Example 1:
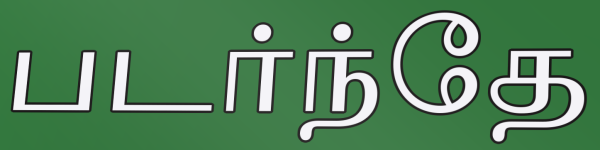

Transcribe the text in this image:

படர்ந்தே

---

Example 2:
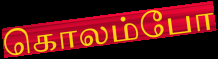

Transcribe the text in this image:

கொலம்போ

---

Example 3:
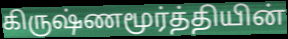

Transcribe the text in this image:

கிருஷ்ணமூர்த்தியின்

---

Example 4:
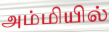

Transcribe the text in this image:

அம்மியில்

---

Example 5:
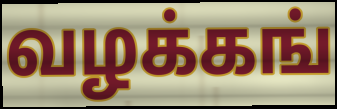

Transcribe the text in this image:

வழக்கங்